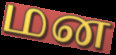
மன